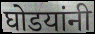
घोडयांनी